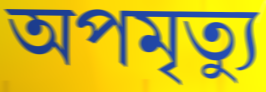
অপমৃত্যু